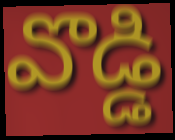
వొడ్డి